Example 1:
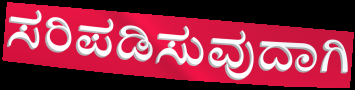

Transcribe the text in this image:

ಸರಿಪಡಿಸುವುದಾಗಿ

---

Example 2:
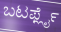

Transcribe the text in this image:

ಬಟರ್ಫ್ಲೈ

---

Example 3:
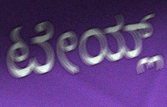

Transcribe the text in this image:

ಟೇಯ್ಲ್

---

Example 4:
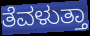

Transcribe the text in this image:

ತೆವಳುತ್ತಾ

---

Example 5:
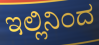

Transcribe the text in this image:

ಇಲ್ಲಿನಿಂದ